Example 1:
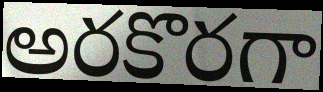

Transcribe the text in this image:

అరకొరగా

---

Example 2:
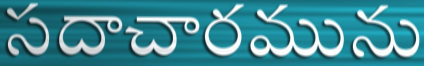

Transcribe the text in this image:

సదాచారమును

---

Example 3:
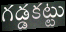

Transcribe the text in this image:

గడ్డకట్టు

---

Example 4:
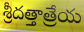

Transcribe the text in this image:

శ్రీదత్తాత్రేయ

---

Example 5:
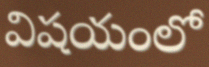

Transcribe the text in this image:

విషయంలో